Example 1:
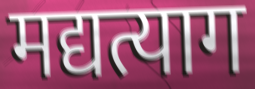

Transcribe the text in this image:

मद्यत्याग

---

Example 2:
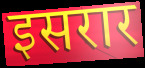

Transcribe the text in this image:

इसरार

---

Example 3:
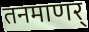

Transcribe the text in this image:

तनमाणर्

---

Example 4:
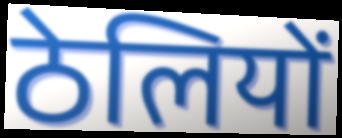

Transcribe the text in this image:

ठेलियों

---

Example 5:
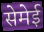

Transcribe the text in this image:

सेमेई